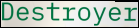
Destroyer